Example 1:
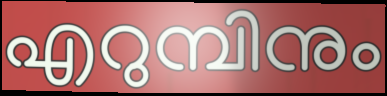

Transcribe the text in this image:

എറുമ്പിനും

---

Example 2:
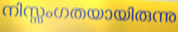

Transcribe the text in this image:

നിസ്സംഗതയായിരുന്നു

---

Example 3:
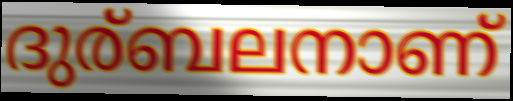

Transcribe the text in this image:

ദുര്ബലനാണ്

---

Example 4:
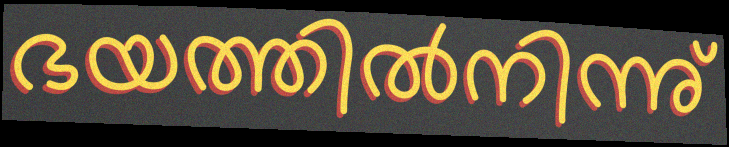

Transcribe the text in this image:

ഭയത്തിൽനിന്നു്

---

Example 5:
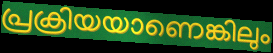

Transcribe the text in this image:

പ്രക്രിയയാണെങ്കിലും